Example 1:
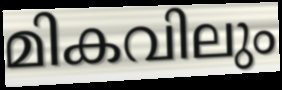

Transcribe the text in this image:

മികവിലും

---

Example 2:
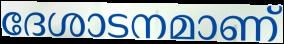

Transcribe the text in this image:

ദേശാടനമാണ്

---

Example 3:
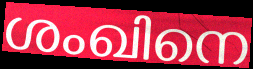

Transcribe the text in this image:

ശംഖിനെ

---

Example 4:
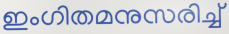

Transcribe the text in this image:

ഇംഗിതമനുസരിച്ച്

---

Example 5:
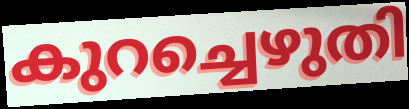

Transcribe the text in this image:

കുറച്ചെഴുതി